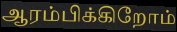
ஆரம்பிக்கிறோம்